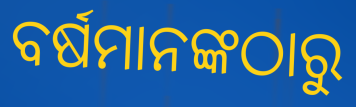
ବର୍ଷମାନଙ୍କଠାରୁ